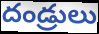
దండ్రులు